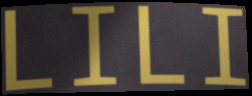
LILI